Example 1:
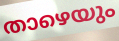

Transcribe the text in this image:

താഴെയും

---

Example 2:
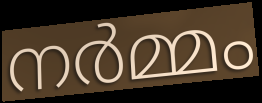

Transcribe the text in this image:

നർമ്മം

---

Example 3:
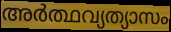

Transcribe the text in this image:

അർത്ഥവ്യത്യാസം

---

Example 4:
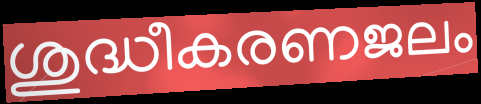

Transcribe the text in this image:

ശുദ്ധീകരണജലം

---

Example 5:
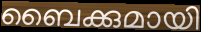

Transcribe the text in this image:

ബൈക്കുമായി